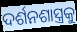
ଦର୍ଶନଶାସ୍ତ୍ରକୁ